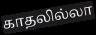
காதலில்லா